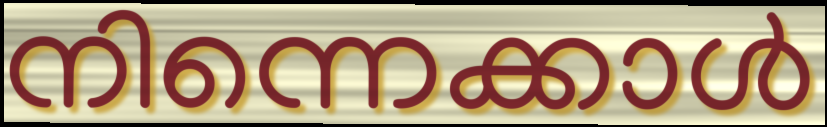
നിന്നെക്കാൾ